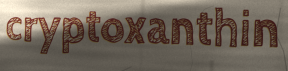
cryptoxanthin